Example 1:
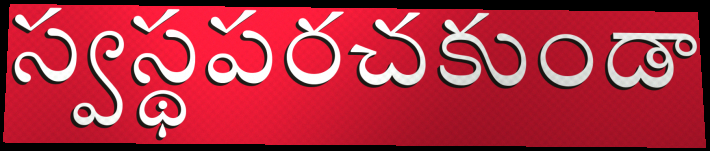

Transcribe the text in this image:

స్వస్థపరచకుండా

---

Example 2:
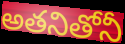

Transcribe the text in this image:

అతనితోనీ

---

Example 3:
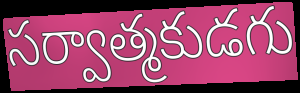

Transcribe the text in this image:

సర్వాత్మకుడగు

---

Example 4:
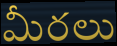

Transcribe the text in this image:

మీరలు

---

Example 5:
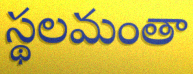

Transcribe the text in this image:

స్థలమంతా